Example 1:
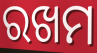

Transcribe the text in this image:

ରଖମ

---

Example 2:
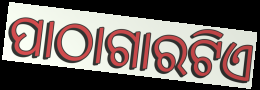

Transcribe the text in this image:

ପାଠାଗାରଟିଏ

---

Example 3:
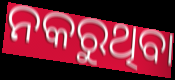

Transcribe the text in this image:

ନକରୁଥିବା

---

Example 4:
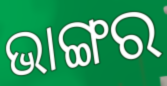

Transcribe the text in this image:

ଭାଙ୍ଗର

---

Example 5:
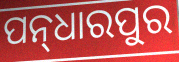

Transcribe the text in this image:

ପନ୍‌ଧାରପୁର